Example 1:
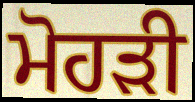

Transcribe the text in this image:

ਮੋਹੜੀ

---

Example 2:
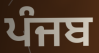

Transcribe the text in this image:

ਪੰਜਬ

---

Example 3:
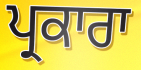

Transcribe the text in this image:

ਪ੍ਰਕਾਰਾ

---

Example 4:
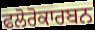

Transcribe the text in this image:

ਫਲੋਰੋਕਾਰਬਨ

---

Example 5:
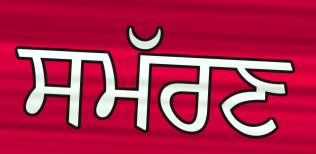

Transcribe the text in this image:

ਸਮੱਰਣ